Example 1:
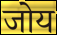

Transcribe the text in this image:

जोय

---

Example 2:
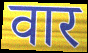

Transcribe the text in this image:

वार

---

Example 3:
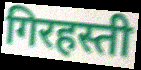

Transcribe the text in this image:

गिरहस्ती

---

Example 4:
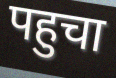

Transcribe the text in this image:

पहुचा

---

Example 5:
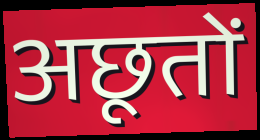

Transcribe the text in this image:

अछूतों